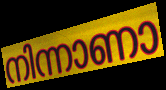
നിന്നാണാ